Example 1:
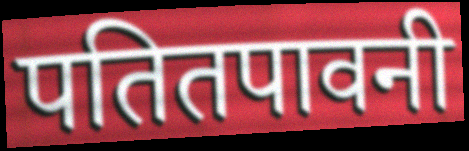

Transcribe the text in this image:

पतितपावनी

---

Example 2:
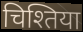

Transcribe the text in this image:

चिश्तिया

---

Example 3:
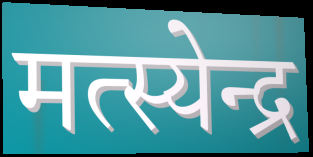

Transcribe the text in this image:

मत्स्येन्द्र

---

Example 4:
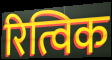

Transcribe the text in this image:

रित्विक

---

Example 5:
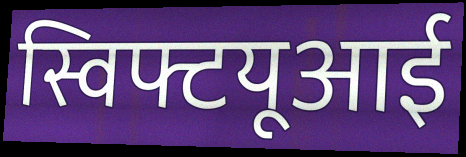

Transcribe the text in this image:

स्विफ्टयूआई